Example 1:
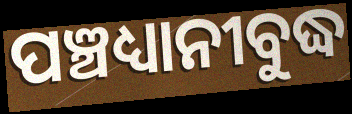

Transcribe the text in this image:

ପଞ୍ଚଧ୍ୟାନୀବୁଦ୍ଧ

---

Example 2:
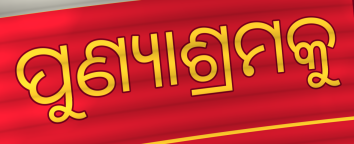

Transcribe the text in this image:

ପୁଣ୍ୟାଶ୍ରମକୁ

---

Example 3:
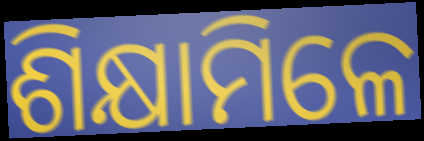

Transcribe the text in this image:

ଶିକ୍ଷାମିଳେ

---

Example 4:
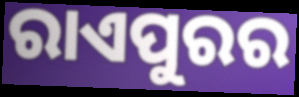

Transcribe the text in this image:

ରାଏପୁରର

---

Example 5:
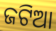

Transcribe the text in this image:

ଜଟିଆ